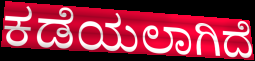
ಕಡೆಯಲಾಗಿದೆ